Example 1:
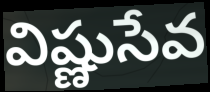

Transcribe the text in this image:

విష్ణుసేవ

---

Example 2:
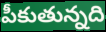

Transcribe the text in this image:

పీకుతున్నది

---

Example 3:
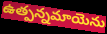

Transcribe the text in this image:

ఉత్పన్నమాయెను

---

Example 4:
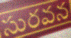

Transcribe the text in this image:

సురవన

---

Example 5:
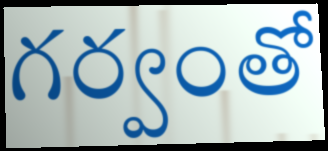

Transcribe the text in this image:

గర్వంతో